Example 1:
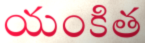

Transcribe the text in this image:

యంకిత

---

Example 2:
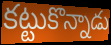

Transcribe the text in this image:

కట్టుకొన్నాడు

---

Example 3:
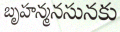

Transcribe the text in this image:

బృహన్మనసునకు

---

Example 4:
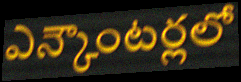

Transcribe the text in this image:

ఎన్కౌంటర్లలో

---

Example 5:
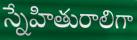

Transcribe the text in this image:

స్నేహితురాలిగా